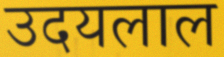
उदयलाल